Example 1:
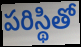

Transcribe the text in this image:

పరిస్థితో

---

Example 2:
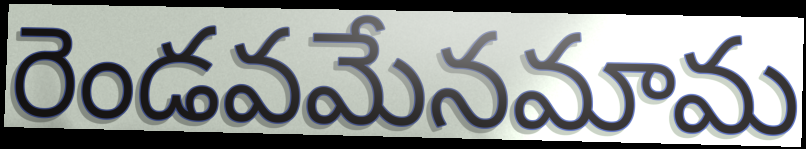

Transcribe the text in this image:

రెండవమేనమామ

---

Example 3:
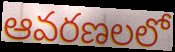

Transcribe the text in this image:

ఆవరణలలో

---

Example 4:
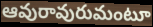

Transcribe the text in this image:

ఆవురావురుమంటూ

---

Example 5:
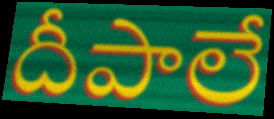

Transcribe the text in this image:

దీపాలే